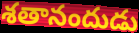
శతానందుడు